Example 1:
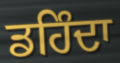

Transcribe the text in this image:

ਡਹਿੰਦਾ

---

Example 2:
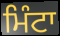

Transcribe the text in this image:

ਮਿੰਟਾ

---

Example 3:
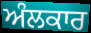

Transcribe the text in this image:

ਅੰਲਕਾਰ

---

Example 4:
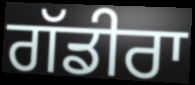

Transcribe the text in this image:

ਗੱਡੀਰਾ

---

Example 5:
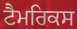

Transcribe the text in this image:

ਟੈਮਰਿਕਸ